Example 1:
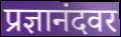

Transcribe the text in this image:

प्रज्ञानंदवर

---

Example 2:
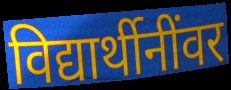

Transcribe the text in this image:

विद्यार्थीनींवर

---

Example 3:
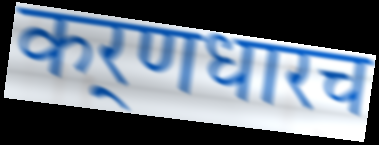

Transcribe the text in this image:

कर्णधारच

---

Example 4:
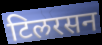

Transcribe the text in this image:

टिलरसन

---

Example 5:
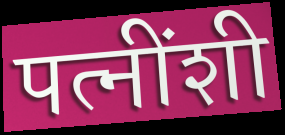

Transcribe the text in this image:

पत्नींशी